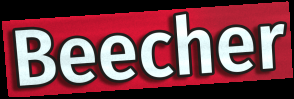
Beecher